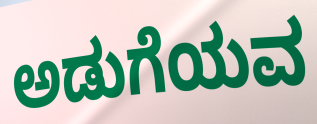
ಅಡುಗೆಯವ